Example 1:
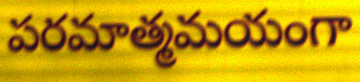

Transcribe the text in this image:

పరమాత్మమయంగా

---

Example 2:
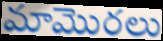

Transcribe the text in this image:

మామొరలు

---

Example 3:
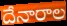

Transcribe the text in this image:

దేనారాల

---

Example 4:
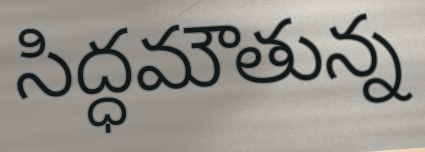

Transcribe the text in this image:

సిద్ధమౌతున్న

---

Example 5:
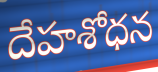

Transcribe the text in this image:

దేహశోధన